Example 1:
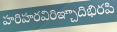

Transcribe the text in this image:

హరిహరవిరిఞ్చాదిభిరపి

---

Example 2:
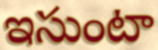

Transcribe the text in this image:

ఇసుంటా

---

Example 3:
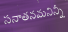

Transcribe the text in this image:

సనాతనమనిన్నీ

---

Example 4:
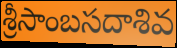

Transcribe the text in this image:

శ్రీసాంబసదాశివ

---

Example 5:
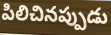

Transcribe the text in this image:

పిలిచినప్పుడు